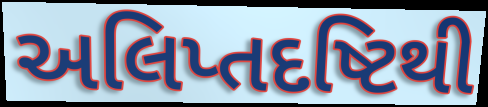
અલિપ્તદષ્ટિથી